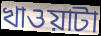
খাওয়াটা